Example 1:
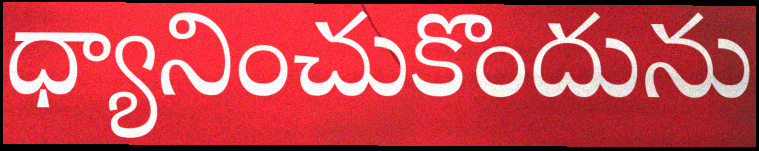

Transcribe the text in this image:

ధ్యానించుకొందును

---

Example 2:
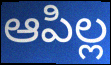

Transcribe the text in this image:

ఆపిల్ల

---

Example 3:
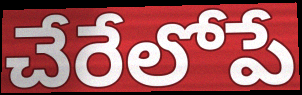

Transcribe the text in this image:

చేరేలోపే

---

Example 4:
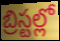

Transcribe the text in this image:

బ్రిస్టల్లో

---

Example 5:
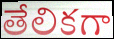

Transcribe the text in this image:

తేలికగా